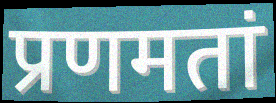
प्रणमतां